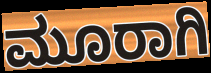
ಮೂರಾಗಿ